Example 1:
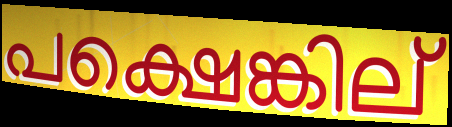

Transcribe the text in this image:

പക്ഷെങ്കില്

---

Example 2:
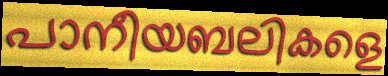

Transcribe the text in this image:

പാനീയബലികളെ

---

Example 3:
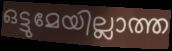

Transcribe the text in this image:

ഒട്ടുമേയില്ലാത്ത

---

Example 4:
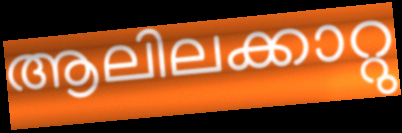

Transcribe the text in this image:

ആലിലക്കാറ്റു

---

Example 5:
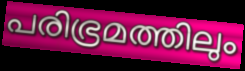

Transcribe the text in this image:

പരിഭ്രമത്തിലും